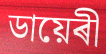
ডায়েৰী